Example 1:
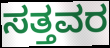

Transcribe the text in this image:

ಸತ್ತವರ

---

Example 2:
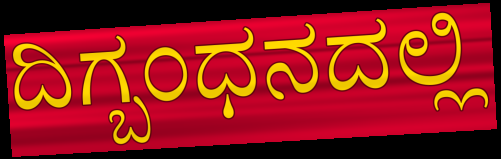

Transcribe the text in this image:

ದಿಗ್ಬಂಧನದಲ್ಲಿ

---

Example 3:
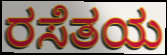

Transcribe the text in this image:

ರಸೆತಯ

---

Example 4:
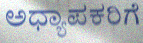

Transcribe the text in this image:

ಅಧ್ಯಾಪಕರಿಗೆ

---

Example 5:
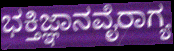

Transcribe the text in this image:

ಭಕ್ತಿಜ್ಞಾನವೈರಾಗ್ಯ